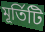
মূৰ্তিটি